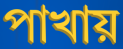
পাখায়